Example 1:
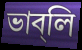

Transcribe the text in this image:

ভাব্‌লি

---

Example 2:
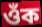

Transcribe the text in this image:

ওঁক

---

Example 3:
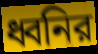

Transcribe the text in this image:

ধ্বনির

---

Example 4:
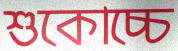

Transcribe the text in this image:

শুকোচ্চে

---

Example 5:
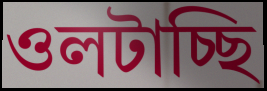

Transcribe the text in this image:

ওলটাচ্ছি